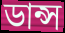
ডান্স